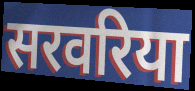
सरवरिया